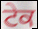
ਟੇਕ